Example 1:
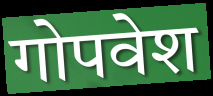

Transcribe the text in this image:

गोपवेश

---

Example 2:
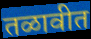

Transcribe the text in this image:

तळावीत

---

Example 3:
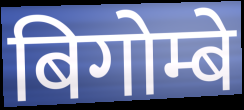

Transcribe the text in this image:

बिगोम्बे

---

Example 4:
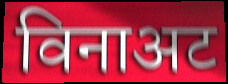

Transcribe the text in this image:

विनाअट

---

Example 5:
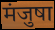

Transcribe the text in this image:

मंजुषा